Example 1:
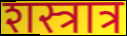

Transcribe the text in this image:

शस्त्रात्र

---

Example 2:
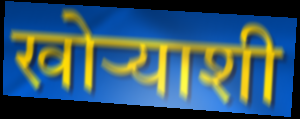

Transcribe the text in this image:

खोऱ्याशी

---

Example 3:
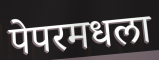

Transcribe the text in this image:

पेपरमधला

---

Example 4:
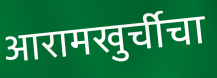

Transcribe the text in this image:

आरामखुर्चीचा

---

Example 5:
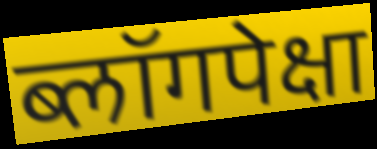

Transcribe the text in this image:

ब्लॉगपेक्षा